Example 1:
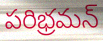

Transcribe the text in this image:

పరిభ్రమన్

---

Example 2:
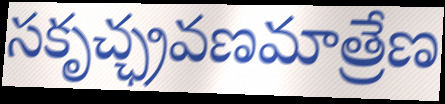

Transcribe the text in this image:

సకృచ్ఛ్రవణమాత్రేణ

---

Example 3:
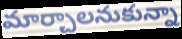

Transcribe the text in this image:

మార్చాలనుకున్నా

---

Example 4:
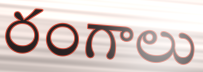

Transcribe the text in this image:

రంగాలు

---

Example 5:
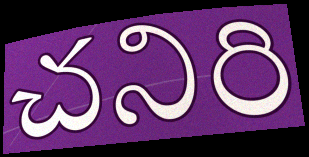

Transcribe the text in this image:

చనిరి